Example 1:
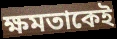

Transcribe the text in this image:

ক্ষমতাকেই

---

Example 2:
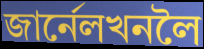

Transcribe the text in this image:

জাৰ্নেলখনলৈ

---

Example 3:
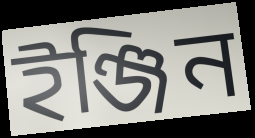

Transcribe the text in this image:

ইঞ্জিন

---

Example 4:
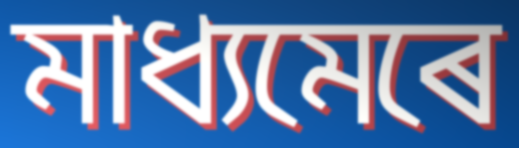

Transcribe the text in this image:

মাধ্যমেৰে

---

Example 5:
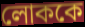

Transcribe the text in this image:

লোককে